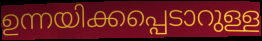
ഉന്നയിക്കപ്പെടാറുള്ള